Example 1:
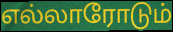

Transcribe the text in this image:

எல்லாரோடும்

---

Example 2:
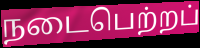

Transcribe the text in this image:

நடைபெற்றப்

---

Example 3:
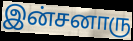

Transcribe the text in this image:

இன்சனாரு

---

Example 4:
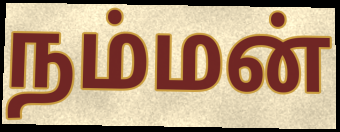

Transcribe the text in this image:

நம்மன்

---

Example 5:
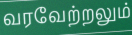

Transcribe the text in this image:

வரவேற்றலும்